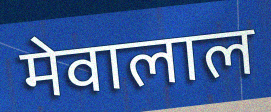
मेवालाल